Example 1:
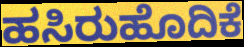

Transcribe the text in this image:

ಹಸಿರುಹೊದಿಕೆ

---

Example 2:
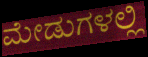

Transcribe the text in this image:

ಮೇಡುಗಳಲ್ಲಿ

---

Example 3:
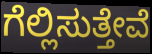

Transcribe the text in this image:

ಗೆಲ್ಲಿಸುತ್ತೇವೆ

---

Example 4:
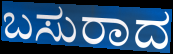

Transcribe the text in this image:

ಬಸುರಾದ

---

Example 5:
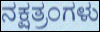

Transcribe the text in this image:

ನಕ್ಷತ್ರಂಗಳು